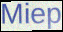
Miep